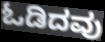
ಓಡಿದವು